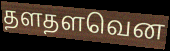
தளதளவென